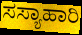
ಸಸ್ಯಾಹಾರಿ